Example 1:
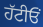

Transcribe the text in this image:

ਹੱਟੀਓਂ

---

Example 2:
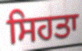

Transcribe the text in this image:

ਸਿਹਤਾ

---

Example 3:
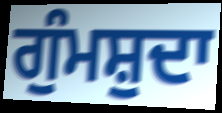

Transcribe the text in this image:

ਗੁੰਮਸ਼ੁਦਾ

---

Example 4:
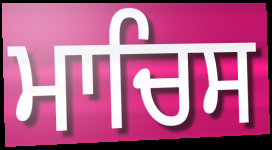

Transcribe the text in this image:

ਮਾਚਿਸ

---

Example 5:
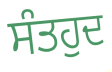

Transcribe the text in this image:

ਸੰਤਹੁਦ